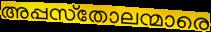
അപ്പസ്‌തോലന്മാരെ